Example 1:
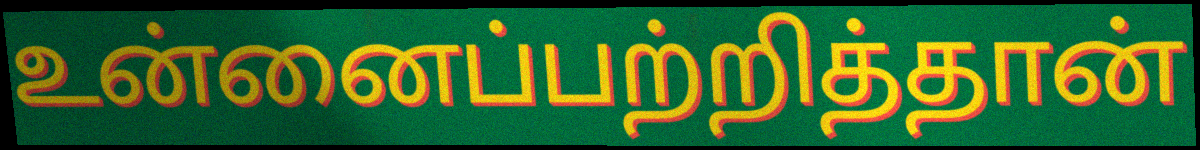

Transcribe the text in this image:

உன்னைப்பற்றித்தான்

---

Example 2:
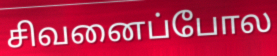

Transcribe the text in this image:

சிவனைப்போல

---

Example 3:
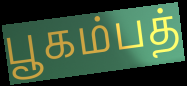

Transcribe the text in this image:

பூகம்பத்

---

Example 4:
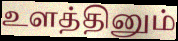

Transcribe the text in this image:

உளத்தினும்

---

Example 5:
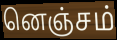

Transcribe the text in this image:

னெஞ்சம்